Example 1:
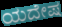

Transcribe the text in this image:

ಯದೇಷ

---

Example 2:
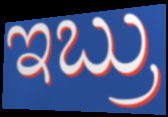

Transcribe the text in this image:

ಇಬ್ರು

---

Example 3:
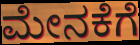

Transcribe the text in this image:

ಮೇನಕೆಗೆ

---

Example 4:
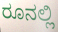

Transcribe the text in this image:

ರೂನಲ್ಲಿ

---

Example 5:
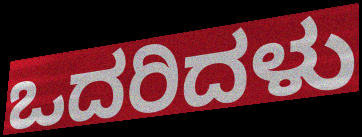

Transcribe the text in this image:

ಒದರಿದಳು